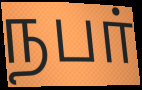
நபர்